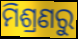
ମିଶ୍ରଣରୁ